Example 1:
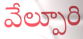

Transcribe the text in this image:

వేల్పూరి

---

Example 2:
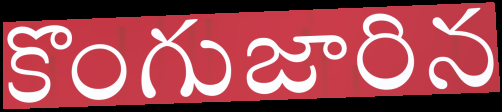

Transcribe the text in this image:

కొంగుజారిన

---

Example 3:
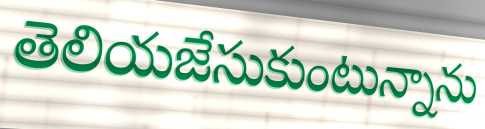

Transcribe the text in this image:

తెలియజేసుకుంటున్నాను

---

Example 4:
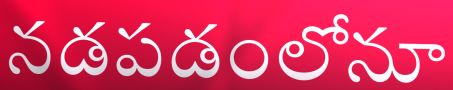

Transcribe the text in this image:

నడపడంలోనూ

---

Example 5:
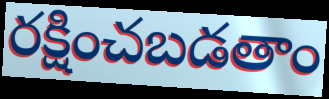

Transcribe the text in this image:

రక్షించబడతాం